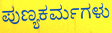
ಪುಣ್ಯಕರ್ಮಗಳು